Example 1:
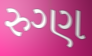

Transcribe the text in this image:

રુગ્ણ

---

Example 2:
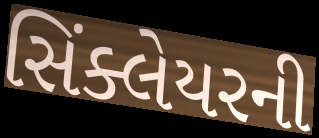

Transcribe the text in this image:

સિંક્લેયરની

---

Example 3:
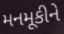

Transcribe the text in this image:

મનમૂકીને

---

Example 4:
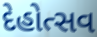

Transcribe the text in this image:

દેહોત્સવ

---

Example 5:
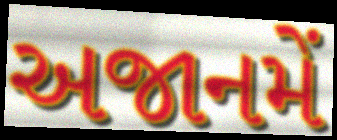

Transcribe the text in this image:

અજાનમેં